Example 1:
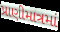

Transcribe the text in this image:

પ્રાણીમાત્રમાં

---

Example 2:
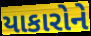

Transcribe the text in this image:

યાકારોને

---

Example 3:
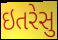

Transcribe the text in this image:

ઇતરેસુ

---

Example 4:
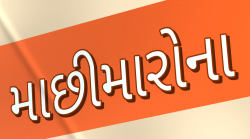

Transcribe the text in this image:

માછીમારોના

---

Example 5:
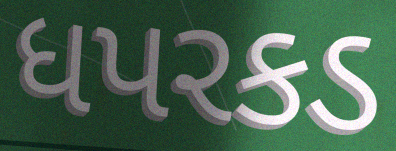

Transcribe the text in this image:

ધપરકડ